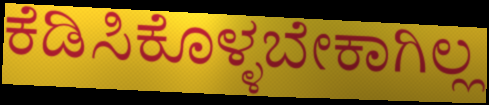
ಕೆಡಿಸಿಕೊಳ್ಳಬೇಕಾಗಿಲ್ಲ